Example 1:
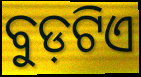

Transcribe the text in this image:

ବୁଡ଼ଟିଏ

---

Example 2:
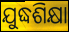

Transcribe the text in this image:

ଯୁଦ୍ଧଶିକ୍ଷା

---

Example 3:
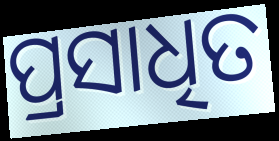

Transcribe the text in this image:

ପ୍ରସାଧିତ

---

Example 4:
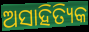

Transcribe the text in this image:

ଅସାହିତ୍ୟିକ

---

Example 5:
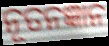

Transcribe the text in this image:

ନୂତନଜ୍ଞାନ